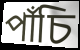
পাঁচি